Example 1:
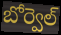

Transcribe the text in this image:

బోర్వెల్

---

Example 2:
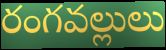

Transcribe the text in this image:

రంగవల్లులు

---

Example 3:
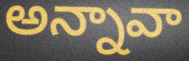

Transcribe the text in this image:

అన్నావా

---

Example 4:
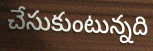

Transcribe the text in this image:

చేసుకుంటున్నది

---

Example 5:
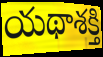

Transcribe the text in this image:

యథాశక్తి